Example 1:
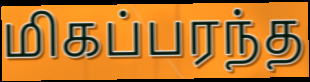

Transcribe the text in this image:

மிகப்பரந்த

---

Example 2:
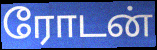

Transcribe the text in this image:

ரோடன்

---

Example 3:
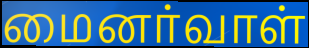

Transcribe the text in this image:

மைனர்வாள்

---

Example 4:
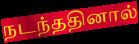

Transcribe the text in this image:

நடந்ததினால்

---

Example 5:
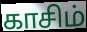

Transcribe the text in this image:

காசிம்